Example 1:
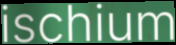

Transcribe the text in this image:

ischium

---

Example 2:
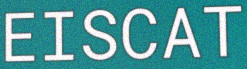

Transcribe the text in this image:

EISCAT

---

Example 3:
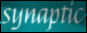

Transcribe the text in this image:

synaptic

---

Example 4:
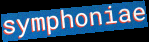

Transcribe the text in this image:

symphoniae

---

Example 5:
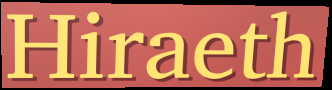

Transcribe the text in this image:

Hiraeth